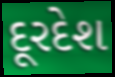
દૂરદેશ